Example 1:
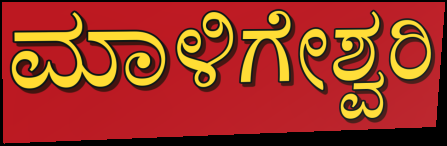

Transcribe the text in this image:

ಮಾಳಿಗೇಶ್ವರಿ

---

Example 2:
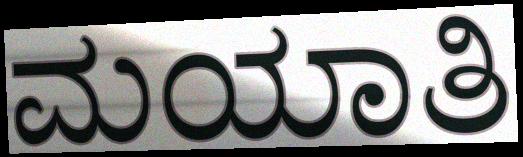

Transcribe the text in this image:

ಮಯಾತಿ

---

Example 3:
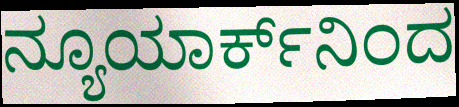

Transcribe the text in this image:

ನ್ಯೂಯಾರ್ಕ್‌ನಿಂದ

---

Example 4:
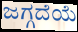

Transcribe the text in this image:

ಜಗ್ಗದೆಯೆ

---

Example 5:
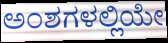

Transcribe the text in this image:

ಅಂಶಗಳಲ್ಲಿಯೇ